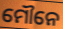
ମୌନେ